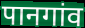
पानगांव